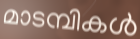
മാടമ്പികൾ